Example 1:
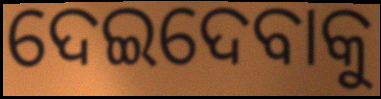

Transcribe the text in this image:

ଦେଇଦେବାକୁ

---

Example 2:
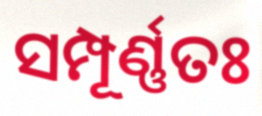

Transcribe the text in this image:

ସମ୍ପୂର୍ଣ୍ଣତଃ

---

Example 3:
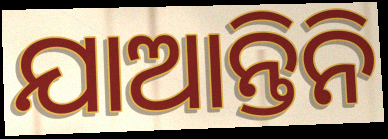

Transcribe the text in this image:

ଯାଆନ୍ତିନି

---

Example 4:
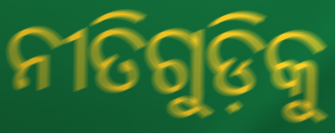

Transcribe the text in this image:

ନୀତିଗୁଡ଼ିକୁ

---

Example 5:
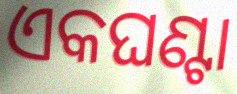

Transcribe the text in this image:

ଏକଘଣ୍ଟା